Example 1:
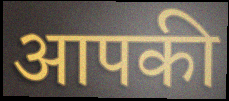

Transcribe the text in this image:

आपकी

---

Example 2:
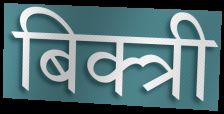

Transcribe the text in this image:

बिक्त्री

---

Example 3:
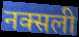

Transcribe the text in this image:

नक्सली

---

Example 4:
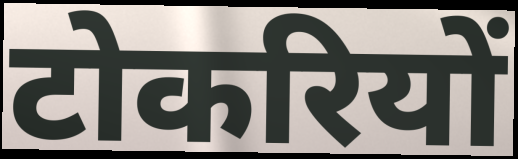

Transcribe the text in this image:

टोकरियों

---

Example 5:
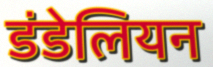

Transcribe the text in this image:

डंडेलियन